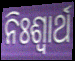
ନିଃଶ୍ୱାର୍ଥ